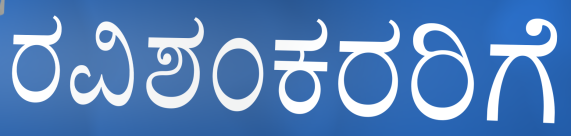
ರವಿಶಂಕರರಿಗೆ